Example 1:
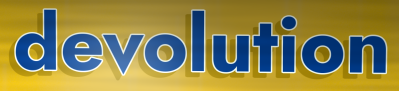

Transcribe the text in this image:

devolution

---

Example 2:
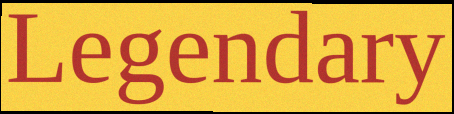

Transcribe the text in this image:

Legendary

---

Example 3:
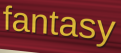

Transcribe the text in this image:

fantasy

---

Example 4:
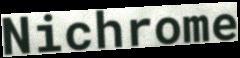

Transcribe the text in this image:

Nichrome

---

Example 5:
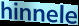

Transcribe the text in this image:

hinnele